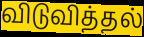
விடுவித்தல்